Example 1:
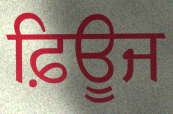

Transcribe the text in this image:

ਫ਼ਿਊਜ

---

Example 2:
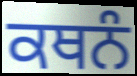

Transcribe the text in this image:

ਕਥਨੰ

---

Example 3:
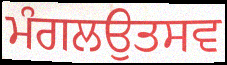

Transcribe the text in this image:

ਮੰਗਲਉਤਸਵ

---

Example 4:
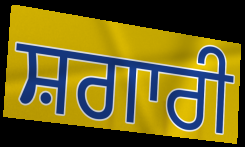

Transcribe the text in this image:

ਸ਼ਗਾਰੀ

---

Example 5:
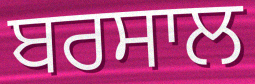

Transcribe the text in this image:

ਬਰਸਾਲ